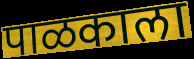
पाळकाला